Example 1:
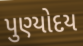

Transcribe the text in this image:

પુણ્યોદય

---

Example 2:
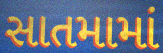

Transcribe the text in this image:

સાતમામાં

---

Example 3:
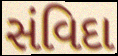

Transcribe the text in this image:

સંવિદા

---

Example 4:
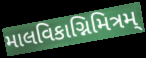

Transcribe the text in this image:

માલવિકાગ્નિમિત્રમ્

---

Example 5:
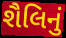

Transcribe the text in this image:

શૈલિનું